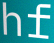
hf